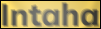
Intaha